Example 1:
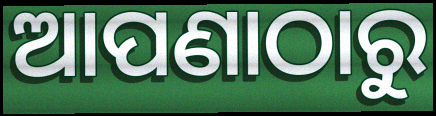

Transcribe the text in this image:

ଆପଣାଠାରୁ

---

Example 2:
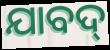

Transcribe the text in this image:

ଯାବଦ୍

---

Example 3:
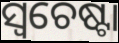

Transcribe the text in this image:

ସ୍ଵଚେଷ୍ଟା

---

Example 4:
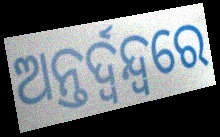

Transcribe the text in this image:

ଅନ୍ତର୍ଦ୍ୱନ୍ଦ୍ୱରେ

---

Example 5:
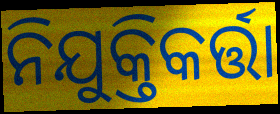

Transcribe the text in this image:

ନିଯୁକ୍ତିକର୍ତ୍ତା